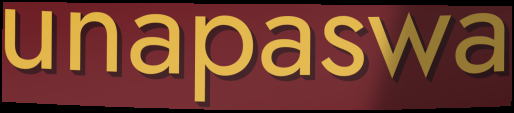
unapaswa